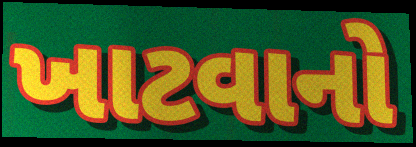
ખાટવાનો